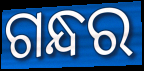
ଗନ୍ଧର